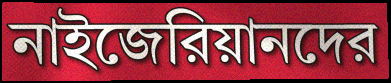
নাইজেরিয়ানদের